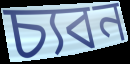
চ্যবন